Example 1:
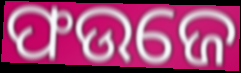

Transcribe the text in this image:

ଫଉଜେ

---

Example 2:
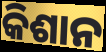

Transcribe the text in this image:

କିଶାନ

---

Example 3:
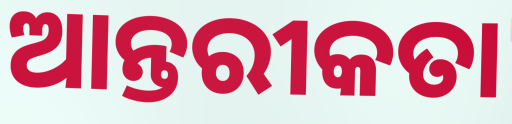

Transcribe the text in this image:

ଆନ୍ତରୀକତା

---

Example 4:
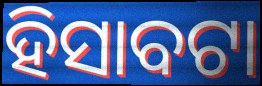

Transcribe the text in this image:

ହିସାବଟା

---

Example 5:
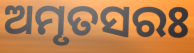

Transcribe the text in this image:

ଅମୃତସରଃ